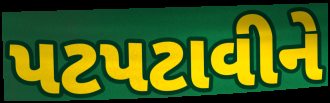
પટપટાવીને